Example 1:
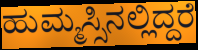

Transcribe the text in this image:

ಹುಮ್ಮಸ್ಸಿನಲ್ಲಿದ್ದರೆ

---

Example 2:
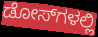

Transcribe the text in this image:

ಡೋಸ್‌ಗಳಲ್ಲಿ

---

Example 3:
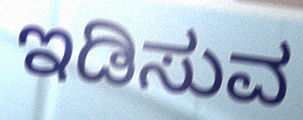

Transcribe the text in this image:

ಇಡಿಸುವ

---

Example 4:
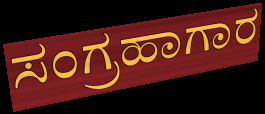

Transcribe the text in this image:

ಸಂಗ್ರಹಾಗಾರ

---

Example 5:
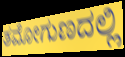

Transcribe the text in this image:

ತಮೋಗುಣದಲ್ಲಿ